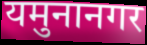
यमुनानगर